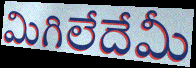
మిగిలేదేమీ